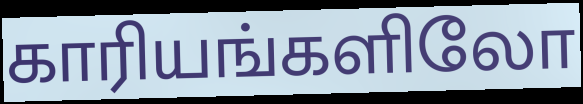
காரியங்களிலோ